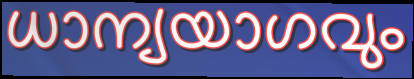
ധാന്യയാഗവും